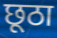
छूठा